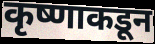
कृष्णाकडून